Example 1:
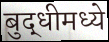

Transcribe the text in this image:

बुद्धीमध्ये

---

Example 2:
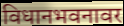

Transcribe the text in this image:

विधानभवनावर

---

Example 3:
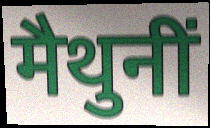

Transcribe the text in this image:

मैथुनीं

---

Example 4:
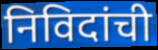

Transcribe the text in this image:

निविदांची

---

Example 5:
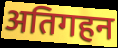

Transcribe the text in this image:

अतिगहन